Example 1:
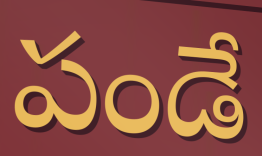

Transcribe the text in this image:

పండే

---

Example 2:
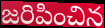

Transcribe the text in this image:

జరిపించిన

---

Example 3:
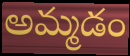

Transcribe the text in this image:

అమ్మడం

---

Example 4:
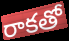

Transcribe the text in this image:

రాకతో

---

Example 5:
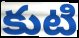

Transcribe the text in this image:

కుటి